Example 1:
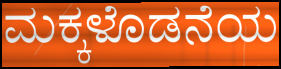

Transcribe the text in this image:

ಮಕ್ಕಳೊಡನೆಯ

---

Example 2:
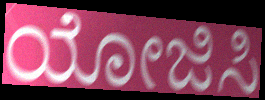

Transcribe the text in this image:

ಯೋಜಿಸಿ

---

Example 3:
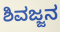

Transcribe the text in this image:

ಶಿವಜ್ಜನ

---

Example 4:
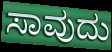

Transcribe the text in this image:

ಸಾವುದು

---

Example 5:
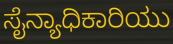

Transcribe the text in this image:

ಸೈನ್ಯಾಧಿಕಾರಿಯು